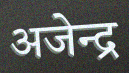
अजेन्द्र